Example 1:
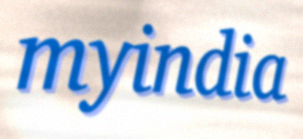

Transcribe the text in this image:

myindia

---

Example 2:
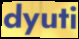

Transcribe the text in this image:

dyuti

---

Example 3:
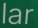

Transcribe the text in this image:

lar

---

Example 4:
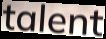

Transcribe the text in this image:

talent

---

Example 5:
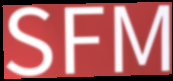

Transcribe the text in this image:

SFM